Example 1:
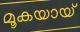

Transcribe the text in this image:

മൂകയായ്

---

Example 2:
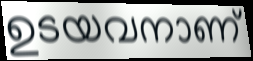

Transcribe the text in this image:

ഉടയവനാണ്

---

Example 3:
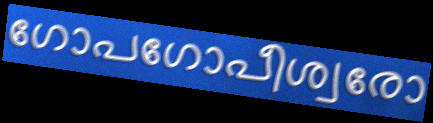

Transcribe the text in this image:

ഗോപഗോപീശ്വരോ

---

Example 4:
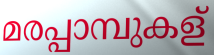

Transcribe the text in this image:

മരപ്പാമ്പുകള്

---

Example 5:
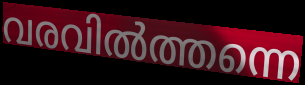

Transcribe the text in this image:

വരവിൽത്തന്നെ